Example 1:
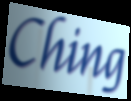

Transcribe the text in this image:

Ching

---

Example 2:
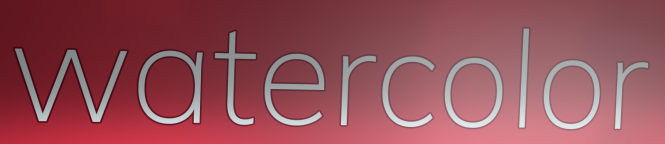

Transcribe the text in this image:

watercolor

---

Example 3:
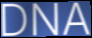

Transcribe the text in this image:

DNA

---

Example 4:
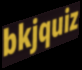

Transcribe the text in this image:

bkjquiz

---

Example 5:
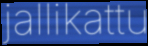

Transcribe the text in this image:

jallikattu